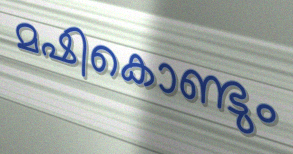
മഷികൊണ്ടും